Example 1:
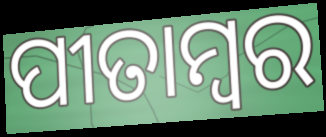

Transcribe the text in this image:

ପୀତାମ୍ୱର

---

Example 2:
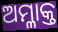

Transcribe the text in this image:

ଅମ୍ଳାକ୍ତ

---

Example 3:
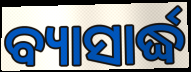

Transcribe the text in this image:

ବ୍ୟାସାର୍ଦ୍ଧ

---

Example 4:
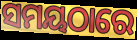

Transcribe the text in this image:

ସମୟଠାରେ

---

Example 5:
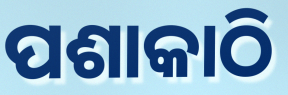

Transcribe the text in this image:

ପଶାକାଠି